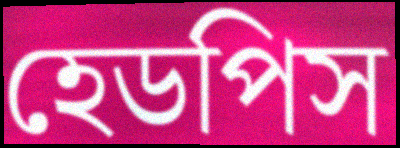
হেডপিস